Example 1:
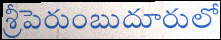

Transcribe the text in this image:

శ్రీపెరుంబుదూరులో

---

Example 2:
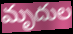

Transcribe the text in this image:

మృదుల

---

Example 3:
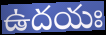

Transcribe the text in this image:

ఉదయః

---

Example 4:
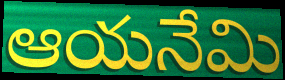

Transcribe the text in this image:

ఆయనేమి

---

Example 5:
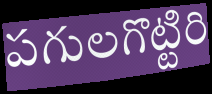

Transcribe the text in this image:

పగులగొట్టిరి